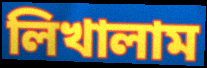
লিখালাম